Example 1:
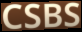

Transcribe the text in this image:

CSBS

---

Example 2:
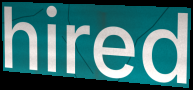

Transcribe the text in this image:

hired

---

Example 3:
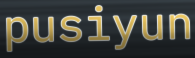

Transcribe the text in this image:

pusiyun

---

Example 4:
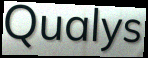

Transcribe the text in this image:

Qualys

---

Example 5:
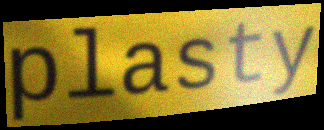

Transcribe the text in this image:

plasty